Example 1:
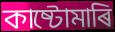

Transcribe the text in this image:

কাষ্টোমাৰি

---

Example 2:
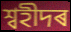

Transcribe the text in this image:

শ্বহীদৰ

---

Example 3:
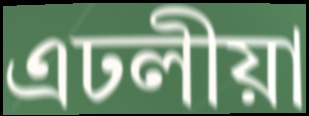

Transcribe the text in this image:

এঢলীয়া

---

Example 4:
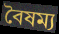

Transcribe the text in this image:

বৈষম্য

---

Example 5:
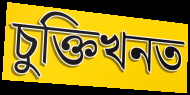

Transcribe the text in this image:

চুক্তিখনত